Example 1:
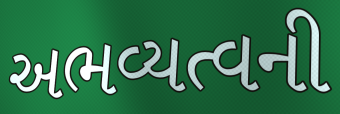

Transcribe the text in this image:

અભવ્યત્વની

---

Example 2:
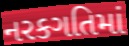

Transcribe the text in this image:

નરકગતિમાં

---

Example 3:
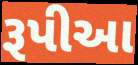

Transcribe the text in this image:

રૂપીઆ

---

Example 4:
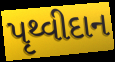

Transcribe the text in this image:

પૃથ્વીદાન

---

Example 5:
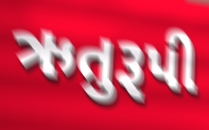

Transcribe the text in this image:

ઋતુરૂપી